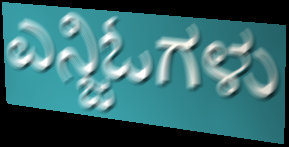
ಎನ್ಜಿಓಗಳು